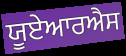
ਯੂਏਆਰਐਸ